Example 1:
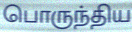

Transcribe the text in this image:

பொருந்திய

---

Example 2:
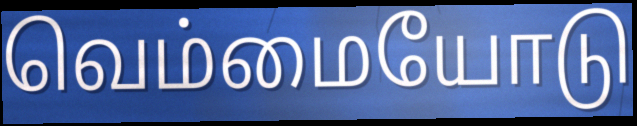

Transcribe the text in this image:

வெம்மையோடு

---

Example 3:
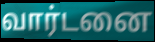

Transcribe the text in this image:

வார்டனை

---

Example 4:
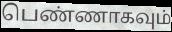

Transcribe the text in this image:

பெண்ணாகவும்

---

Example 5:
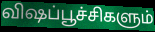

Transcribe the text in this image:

விஷப்பூச்சிகளும்